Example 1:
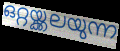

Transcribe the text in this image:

ഒറ്റയ്ക്കലയുന്ന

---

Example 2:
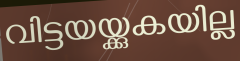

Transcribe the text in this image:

വിട്ടയയ്ക്കുകയില്ല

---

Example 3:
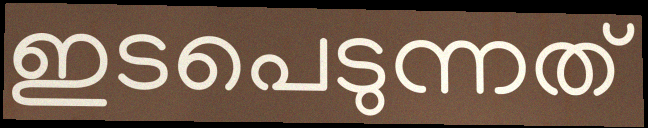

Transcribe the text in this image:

ഇടപെടുന്നത്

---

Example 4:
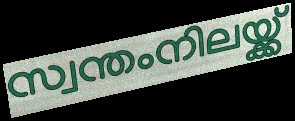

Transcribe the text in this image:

സ്വന്തംനിലയ്ക്ക്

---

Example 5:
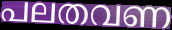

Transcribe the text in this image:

പലതവണ